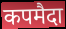
कपमैदा